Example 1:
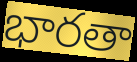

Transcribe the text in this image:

భారతా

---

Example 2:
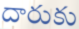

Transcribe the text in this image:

దారుకు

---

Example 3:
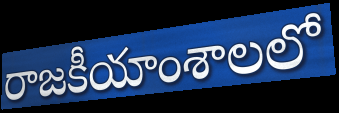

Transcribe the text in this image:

రాజకీయాంశాలలో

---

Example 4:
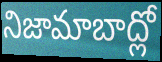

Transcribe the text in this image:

నిజామాబాద్లో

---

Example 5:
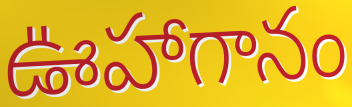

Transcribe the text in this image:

ఊహాగానం